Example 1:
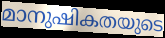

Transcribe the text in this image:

മാനുഷികതയുടെ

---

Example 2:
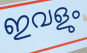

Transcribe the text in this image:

ഇവളും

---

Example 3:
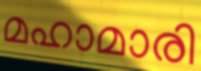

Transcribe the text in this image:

മഹാമാരി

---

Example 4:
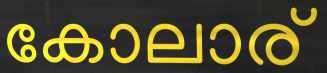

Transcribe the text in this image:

കോലാര്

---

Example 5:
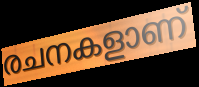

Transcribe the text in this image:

രചനകളാണ്